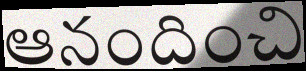
ఆనందించి